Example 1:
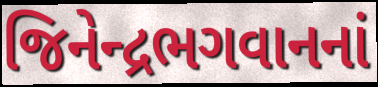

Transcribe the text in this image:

જિનેન્દ્રભગવાનનાં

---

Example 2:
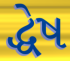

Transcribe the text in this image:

દ્ધેષ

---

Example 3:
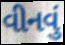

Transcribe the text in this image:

વીનવું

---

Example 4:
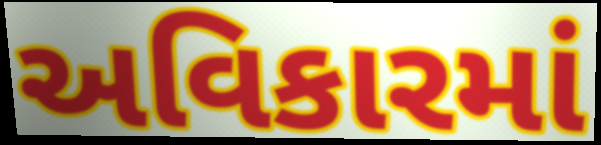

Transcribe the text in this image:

અવિકારમાં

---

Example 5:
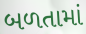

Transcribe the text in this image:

બળતામાં